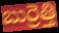
బుర్రెత్తి